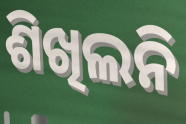
ଶିଖିଲନି